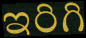
ఇరిగి